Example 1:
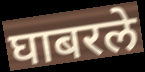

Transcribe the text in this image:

घाबरले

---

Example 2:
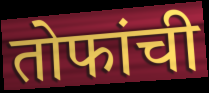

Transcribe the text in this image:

तोफांची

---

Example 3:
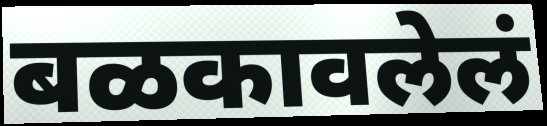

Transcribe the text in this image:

बळकावलेलं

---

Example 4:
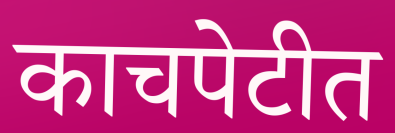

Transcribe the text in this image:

काचपेटीत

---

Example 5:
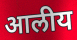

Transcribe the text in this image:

आलीय